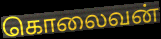
கொலைவன்